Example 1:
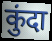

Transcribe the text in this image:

कुंदा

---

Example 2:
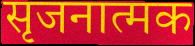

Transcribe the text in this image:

सृजनात्मक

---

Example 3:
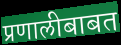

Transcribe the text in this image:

प्रणालीबाबत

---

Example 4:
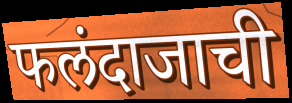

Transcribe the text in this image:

फलंदाजाची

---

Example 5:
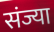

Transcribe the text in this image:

संज्या